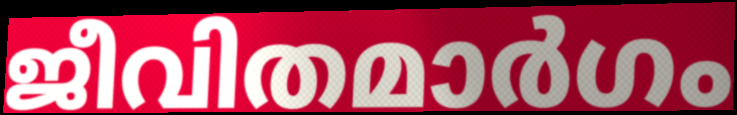
ജീവിതമാർഗം